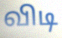
விடி